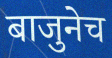
बाजुनेच